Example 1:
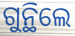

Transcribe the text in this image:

ଗୁନ୍ଥିଲେ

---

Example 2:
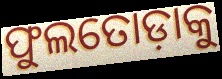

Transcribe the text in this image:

ଫୁଲତୋଡ଼ାକୁ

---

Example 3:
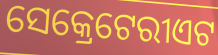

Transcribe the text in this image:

ସେକ୍ରେଟେରୀଏଟ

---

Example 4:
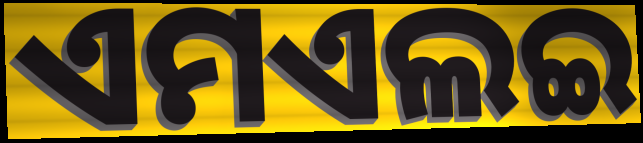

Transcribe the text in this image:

ଏମଏଲଇ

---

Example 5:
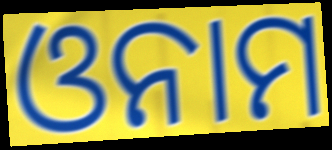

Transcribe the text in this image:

ଓନାମ